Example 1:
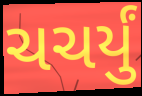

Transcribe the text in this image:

ચચર્યું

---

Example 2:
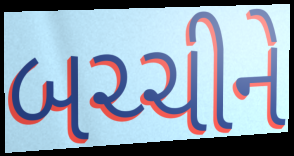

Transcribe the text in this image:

બચ્ચીને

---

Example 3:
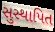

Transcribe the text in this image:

સુસ્થાપિત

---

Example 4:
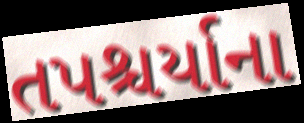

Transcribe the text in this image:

તપશ્ચર્યાના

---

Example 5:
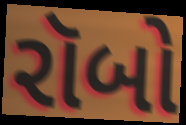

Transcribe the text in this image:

રૉબો